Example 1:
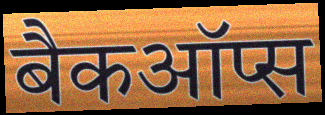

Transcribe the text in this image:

बैकऑप्स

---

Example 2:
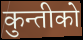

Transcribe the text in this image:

कुन्तीको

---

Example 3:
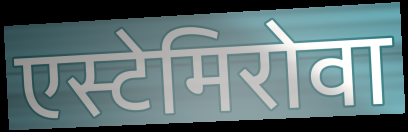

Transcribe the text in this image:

एस्टेमिरोवा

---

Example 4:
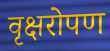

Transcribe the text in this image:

वृक्षरोपण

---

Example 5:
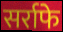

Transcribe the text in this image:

सर्राफे